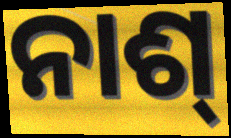
ନାଶ୍